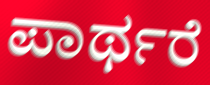
ಪಾರ್ಥರೆ